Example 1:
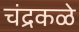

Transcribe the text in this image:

चंद्रकळे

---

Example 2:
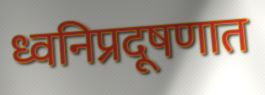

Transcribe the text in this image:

ध्वनिप्रदूषणात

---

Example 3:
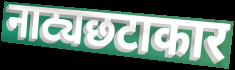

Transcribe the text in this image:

नाट्यछटाकार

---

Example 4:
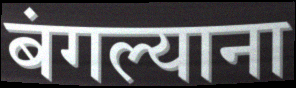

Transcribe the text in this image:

बंगल्याना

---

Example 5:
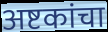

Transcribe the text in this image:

अष्टकांचा